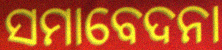
ସମାବେଦନା